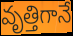
వృత్తిగానే